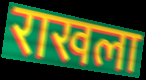
राखला